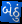
બેઠું